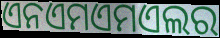
ଏନଏମଏମଏଲର